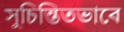
সুচিন্তিতভাবে